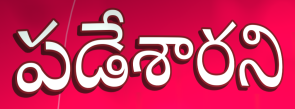
పడేశారని